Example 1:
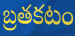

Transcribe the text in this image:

బ్రతకటం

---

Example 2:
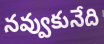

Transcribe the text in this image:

నవ్వుకునేది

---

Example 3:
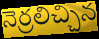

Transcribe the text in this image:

నెర్రలిచ్చిన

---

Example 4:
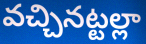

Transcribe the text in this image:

వచ్చినట్టల్లా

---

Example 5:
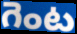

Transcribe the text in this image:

గెంట